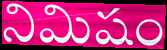
నిమిషం